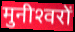
मुनीश्वरों